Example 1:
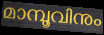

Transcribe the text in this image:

മാമ്പൂവിനും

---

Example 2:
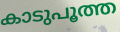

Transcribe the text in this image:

കാടുപൂത്ത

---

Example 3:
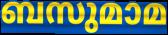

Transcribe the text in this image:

ബസുമാമ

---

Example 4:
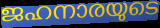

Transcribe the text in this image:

ജഹനാരയുടെ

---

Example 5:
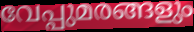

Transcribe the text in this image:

വേപ്പുമരങ്ങളും